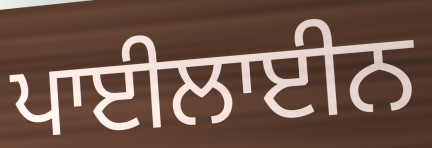
ਪਾਈਲਾਈਨ